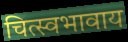
चित्स्वभावाय